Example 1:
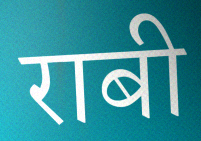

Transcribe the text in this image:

राबी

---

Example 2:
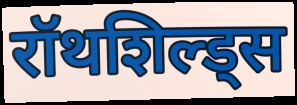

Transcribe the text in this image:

रॉथशिल्ड्स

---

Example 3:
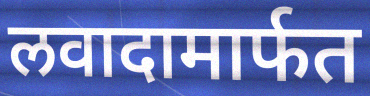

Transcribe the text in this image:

लवादामार्फत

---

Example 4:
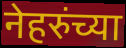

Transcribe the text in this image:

नेहरुंच्या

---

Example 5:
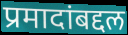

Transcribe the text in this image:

प्रमादांबद्दल